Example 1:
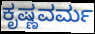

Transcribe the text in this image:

ಕೃಷ್ಣವರ್ಮ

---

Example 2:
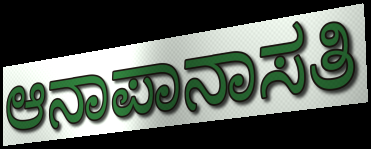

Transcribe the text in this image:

ಆನಾಪಾನಾಸತಿ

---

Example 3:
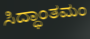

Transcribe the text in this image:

ಸಿದ್ಧಾಂತಮಂ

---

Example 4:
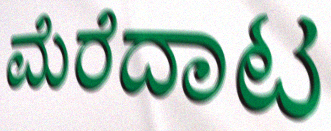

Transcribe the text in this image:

ಮೆರೆದಾಟ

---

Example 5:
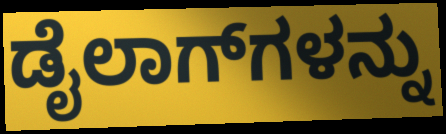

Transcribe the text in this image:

ಡೈಲಾಗ್‌ಗಳನ್ನು